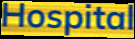
Hospital